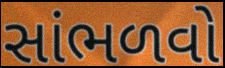
સાંભળવો